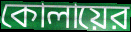
কোলায়ের